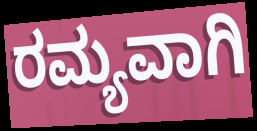
ರಮ್ಯವಾಗಿ